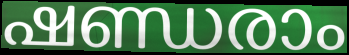
ഷണ്ഡരാം